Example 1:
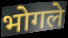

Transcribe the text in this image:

भोगले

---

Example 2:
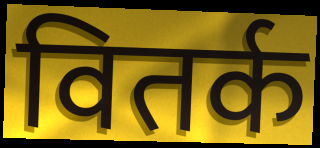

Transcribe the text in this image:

वितर्क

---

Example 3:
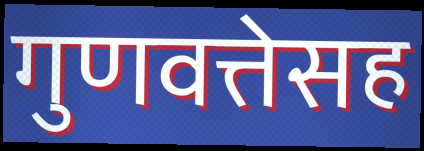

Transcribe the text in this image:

गुणवत्तेसह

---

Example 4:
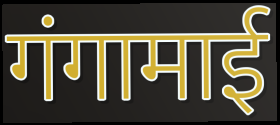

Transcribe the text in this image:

गंगामाई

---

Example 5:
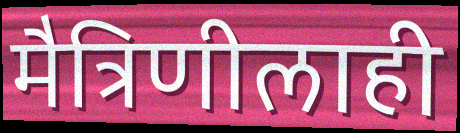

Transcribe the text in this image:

मैत्रिणीलाही